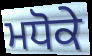
ਮਧੋਕੇ